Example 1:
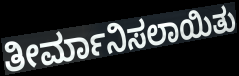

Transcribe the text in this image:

ತೀರ್ಮಾನಿಸಲಾಯಿತು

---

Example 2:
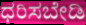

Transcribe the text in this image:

ಧರಿಸಬೇಡಿ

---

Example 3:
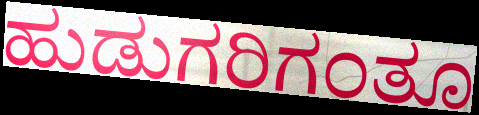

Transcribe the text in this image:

ಹುಡುಗರಿಗಂತೂ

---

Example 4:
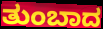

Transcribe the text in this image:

ತುಂಬಾದ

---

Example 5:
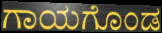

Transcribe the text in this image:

ಗಾಯಗೊಂಡ